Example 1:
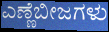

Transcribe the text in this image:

ಎಣ್ಣೆಬೀಜಗಳು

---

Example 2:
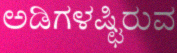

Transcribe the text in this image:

ಅಡಿಗಳಷ್ಟಿರುವ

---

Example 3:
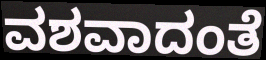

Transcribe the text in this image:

ವಶವಾದಂತೆ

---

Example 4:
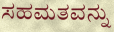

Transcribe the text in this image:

ಸಹಮತವನ್ನು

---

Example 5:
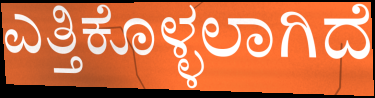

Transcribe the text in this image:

ಎತ್ತಿಕೊಳ್ಳಲಾಗಿದೆ